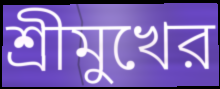
শ্রীমুখের